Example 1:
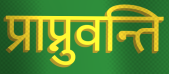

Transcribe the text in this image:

प्राप्नुवन्ति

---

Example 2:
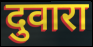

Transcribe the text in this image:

दुवारा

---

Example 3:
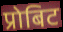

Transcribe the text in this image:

प्रोबिट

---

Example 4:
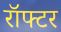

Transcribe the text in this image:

रॉफ्टर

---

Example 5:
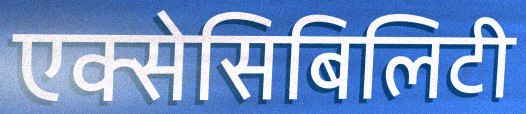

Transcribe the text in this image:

एक्सेसिबिलिटी